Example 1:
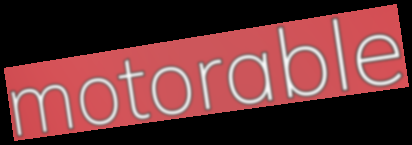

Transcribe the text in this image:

motorable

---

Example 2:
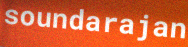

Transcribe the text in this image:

soundarajan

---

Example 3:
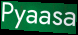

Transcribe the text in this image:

Pyaasa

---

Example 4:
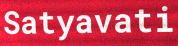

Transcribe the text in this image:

Satyavati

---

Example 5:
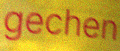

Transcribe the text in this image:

gechen